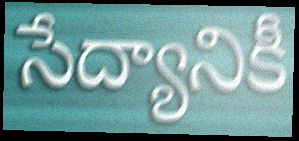
సేద్యానికీ